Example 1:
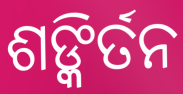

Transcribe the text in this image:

ଶଙ୍କିର୍ତନ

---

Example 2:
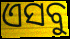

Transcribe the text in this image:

ଏସବୁ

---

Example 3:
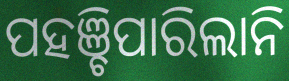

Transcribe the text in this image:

ପହଞ୍ଚିପାରିଲାନି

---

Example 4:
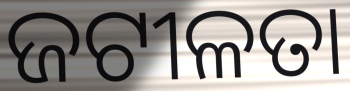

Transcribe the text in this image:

ଜଟୀଳତା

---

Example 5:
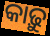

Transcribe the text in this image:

କାଢ଼ୁ